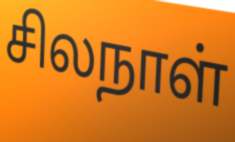
சிலநாள்